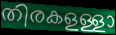
തിരകളള്ളാ